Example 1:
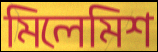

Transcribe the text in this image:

মিলেমিশ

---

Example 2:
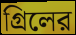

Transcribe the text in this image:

গ্রিলের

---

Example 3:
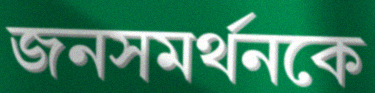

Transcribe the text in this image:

জনসমর্থনকে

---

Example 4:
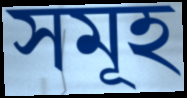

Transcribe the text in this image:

সমূহ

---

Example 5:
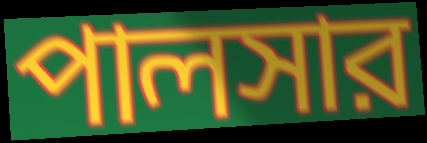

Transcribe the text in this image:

পালসার